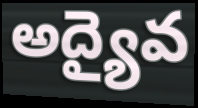
అద్యైవ